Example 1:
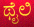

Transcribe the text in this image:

ಥೈಲಿ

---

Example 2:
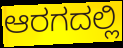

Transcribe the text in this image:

ಆರಗದಲ್ಲಿ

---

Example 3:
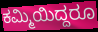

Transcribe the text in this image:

ಕಮ್ಮಿಯಿದ್ದರೂ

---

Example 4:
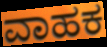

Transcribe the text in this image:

ವಾಹಕ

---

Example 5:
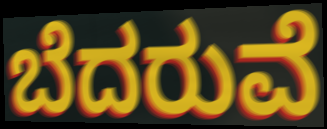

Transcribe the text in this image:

ಬೆದರುವೆ